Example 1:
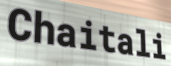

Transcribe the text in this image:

Chaitali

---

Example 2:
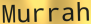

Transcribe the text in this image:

Murrah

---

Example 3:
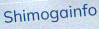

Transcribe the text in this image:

Shimogainfo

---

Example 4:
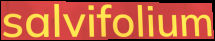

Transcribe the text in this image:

salvifolium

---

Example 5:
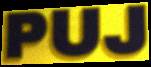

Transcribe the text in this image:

PUJ